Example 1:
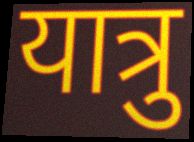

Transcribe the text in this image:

यात्रु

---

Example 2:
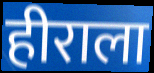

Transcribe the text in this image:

हीराला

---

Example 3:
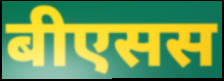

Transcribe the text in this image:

बीएसस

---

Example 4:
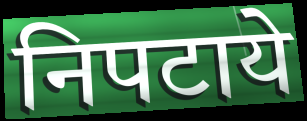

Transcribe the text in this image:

निपटाये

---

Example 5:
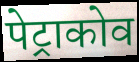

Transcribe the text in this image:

पेट्राकोव